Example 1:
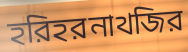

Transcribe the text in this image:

হরিহরনাথজির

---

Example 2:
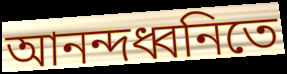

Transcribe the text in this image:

আনন্দধ্বনিতে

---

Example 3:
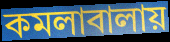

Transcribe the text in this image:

কমলাবালায়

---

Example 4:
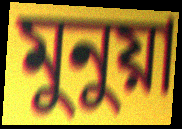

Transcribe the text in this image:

মুনুয়া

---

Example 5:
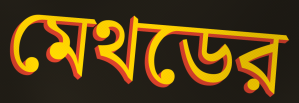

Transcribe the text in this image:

মেথডের